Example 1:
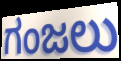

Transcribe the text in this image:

ಗಂಜಲು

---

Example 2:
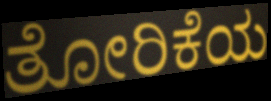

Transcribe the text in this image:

ತೋರಿಕೆಯ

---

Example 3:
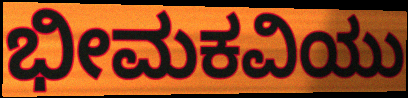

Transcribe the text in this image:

ಭೀಮಕವಿಯು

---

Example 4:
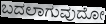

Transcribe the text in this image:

ಬದಲಾಗುವುದೋ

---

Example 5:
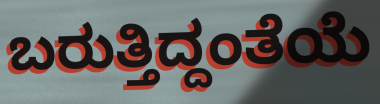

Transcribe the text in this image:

ಬರುತ್ತಿದ್ದಂತೆಯೆ